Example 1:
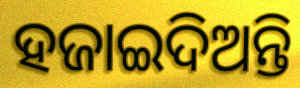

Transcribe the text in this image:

ହଜାଇଦିଅନ୍ତି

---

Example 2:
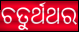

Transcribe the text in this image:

ଚତୁର୍ଥଥର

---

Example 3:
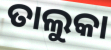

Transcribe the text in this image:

ତାଲୁକା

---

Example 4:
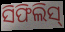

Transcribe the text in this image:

ସିଫିଲିସ୍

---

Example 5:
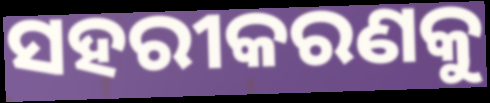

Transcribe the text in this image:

ସହରୀକରଣକୁ